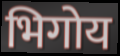
भिगोय